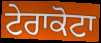
ਟੇਰਾਕੋਟਾ